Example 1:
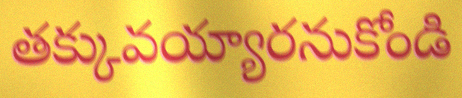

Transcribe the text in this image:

తక్కువయ్యారనుకోండి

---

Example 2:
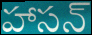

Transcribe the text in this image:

హాసన్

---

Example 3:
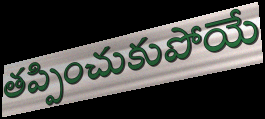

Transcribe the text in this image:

తప్పించుకుపోయే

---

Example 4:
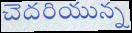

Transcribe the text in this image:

చెదరియున్న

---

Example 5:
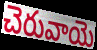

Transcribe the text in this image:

చెరువాయె